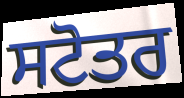
ਸਟੋਤਰ